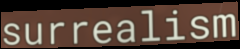
surrealism